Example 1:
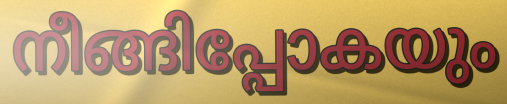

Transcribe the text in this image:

നീങ്ങിപ്പോകയും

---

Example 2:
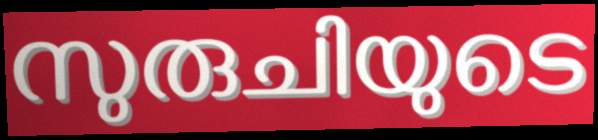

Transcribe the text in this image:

സുരുചിയുടെ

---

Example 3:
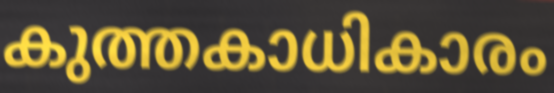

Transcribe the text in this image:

കുത്തകാധികാരം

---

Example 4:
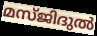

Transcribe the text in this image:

മസ്ജിദുൽ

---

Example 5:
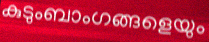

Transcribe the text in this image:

കുടുംബാംഗങ്ങളെയും